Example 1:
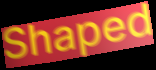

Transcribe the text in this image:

Shaped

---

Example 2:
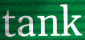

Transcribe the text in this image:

tank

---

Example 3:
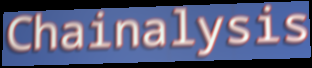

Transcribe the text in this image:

Chainalysis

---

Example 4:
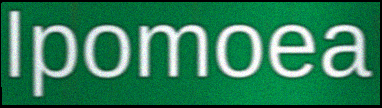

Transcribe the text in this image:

Ipomoea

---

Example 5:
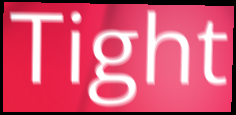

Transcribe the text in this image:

Tight